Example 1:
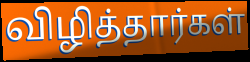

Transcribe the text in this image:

விழித்தார்கள்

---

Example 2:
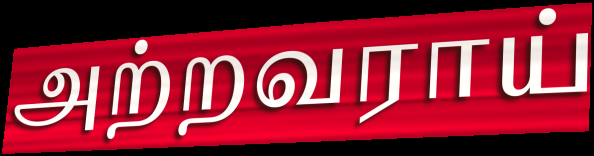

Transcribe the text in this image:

அற்றவராய்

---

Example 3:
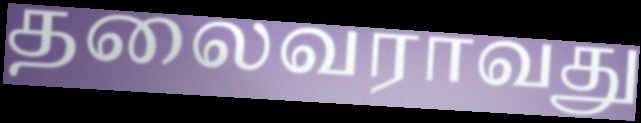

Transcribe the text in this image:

தலைவராவது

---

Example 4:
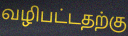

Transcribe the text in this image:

வழிபட்டதற்கு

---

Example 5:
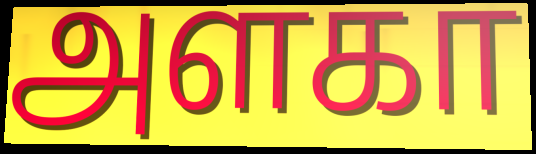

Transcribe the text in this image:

அளகா